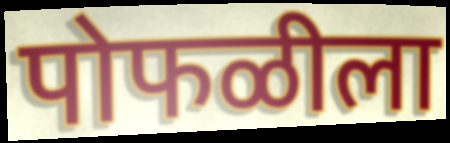
पोफळीला